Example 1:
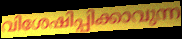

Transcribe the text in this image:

വിശേഷിപ്പിക്കാവുന്ന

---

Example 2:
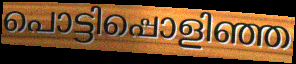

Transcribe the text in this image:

പൊട്ടിപ്പൊളിഞ്ഞ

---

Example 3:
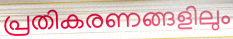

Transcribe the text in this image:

പ്രതികരണങ്ങളിലും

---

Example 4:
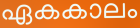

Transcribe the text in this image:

ഏകകാലം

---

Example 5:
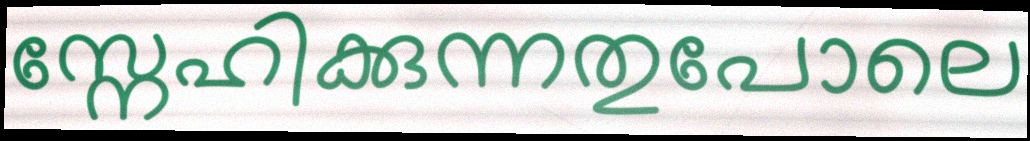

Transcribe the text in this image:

സ്നേഹിക്കുന്നതുപോലെ